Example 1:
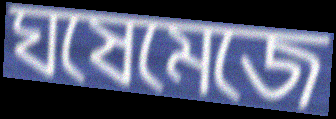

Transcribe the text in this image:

ঘষেমেজে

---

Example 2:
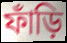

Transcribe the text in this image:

ফাঁড়ি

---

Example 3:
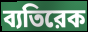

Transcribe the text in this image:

ব্যতিরেক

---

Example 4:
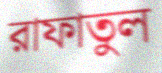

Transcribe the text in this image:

রাফাতুল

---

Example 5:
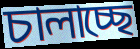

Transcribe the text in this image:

চালাচ্ছে